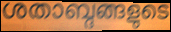
ശതാബ്ദങ്ങളുടെ